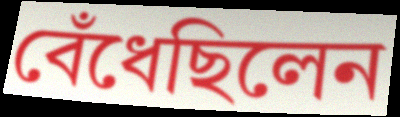
বেঁধেছিলেন